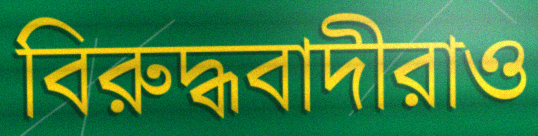
বিরুদ্ধবাদীরাও